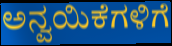
ಅನ್ವಯಿಕೆಗಳಿಗೆ